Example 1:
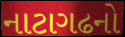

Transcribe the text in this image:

નાટાગઢનો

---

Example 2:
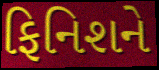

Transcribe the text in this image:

ફિનિશને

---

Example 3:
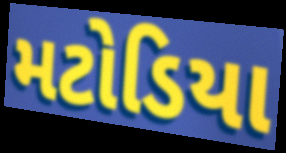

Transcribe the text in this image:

મટોડિયા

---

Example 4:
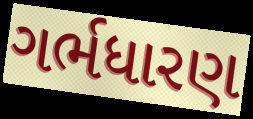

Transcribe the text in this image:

ગર્ભધારણ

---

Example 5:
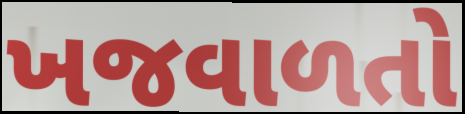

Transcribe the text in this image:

ખજવાળતો